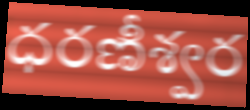
ధరణీశ్వర